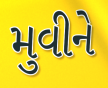
મુવીને